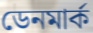
ডেনমাৰ্ক